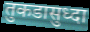
तुकडासुध्दा